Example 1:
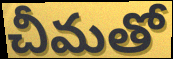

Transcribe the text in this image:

చీమతో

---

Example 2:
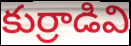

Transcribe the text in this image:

కుర్రాడివి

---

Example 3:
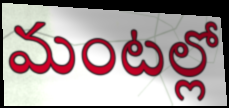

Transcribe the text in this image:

మంటల్లో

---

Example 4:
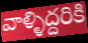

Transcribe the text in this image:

వాళ్ళిద్దరికి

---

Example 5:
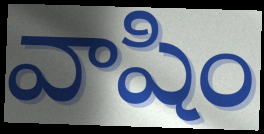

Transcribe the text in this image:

వాషిం